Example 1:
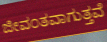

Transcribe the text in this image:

ಜೀವಂತವಾಗುತ್ತವೆ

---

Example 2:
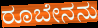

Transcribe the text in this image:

ರೂಬೇನನು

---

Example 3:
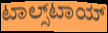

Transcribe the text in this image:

ಟಾಲ್ಸ್‌ಟಾಯ್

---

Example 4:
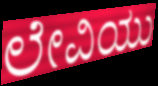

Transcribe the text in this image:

ಲೇವಿಯು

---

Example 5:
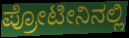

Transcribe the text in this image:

ಪ್ರೋಟೀನಿನಲ್ಲಿ